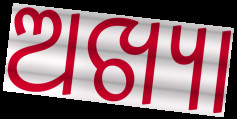
ଅଖ୍ୟା